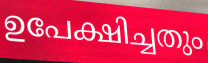
ഉപേക്ഷിച്ചതും